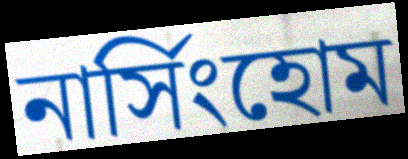
নার্সিংহোম